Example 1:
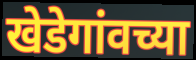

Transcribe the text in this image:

खेडेगांवच्या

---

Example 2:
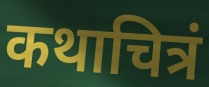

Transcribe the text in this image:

कथाचित्रं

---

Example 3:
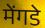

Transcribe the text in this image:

मेंगडे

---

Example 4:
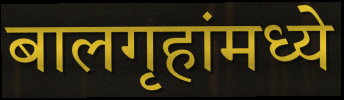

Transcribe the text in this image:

बालगृहांमध्ये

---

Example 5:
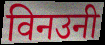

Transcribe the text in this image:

विनउनी